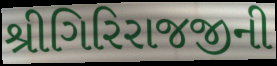
શ્રીગિરિરાજજીની